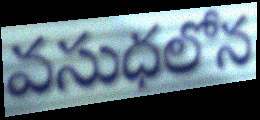
వసుధలోన